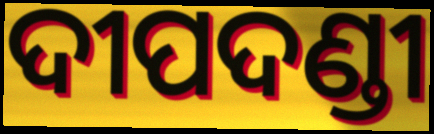
ଦୀପଦଣ୍ଡୀ